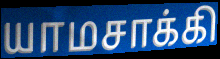
யாமசாக்கி